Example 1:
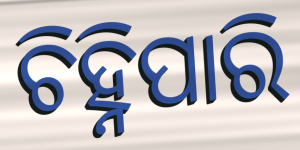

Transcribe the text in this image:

ଚିହ୍ନିପାରି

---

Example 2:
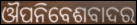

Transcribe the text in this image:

ଔପନିବେଶବାଦର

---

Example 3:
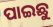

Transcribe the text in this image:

ପାଇଛୁ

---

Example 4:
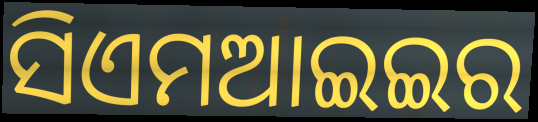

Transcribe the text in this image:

ସିଏମଆଇଇର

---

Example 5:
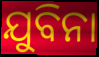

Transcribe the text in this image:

ଯୁବିନା